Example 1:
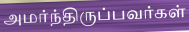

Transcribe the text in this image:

அமர்ந்திருப்பவர்கள்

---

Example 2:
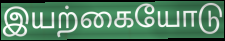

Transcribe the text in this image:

இயற்கையோடு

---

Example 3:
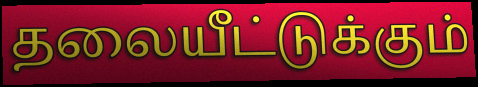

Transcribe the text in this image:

தலையீட்டுக்கும்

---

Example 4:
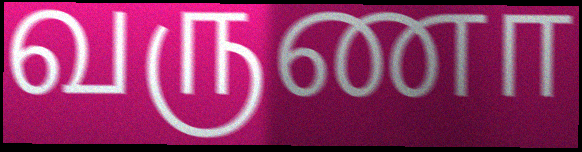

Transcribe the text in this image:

வருணா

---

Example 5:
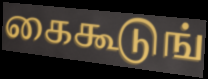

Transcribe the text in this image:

கைகூடுங்